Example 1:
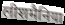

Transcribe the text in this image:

लीशमैनिया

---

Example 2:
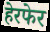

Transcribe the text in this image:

हेरफेर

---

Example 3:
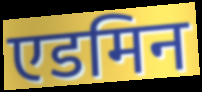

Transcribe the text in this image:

एडमिन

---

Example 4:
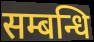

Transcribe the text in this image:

सम्बन्धि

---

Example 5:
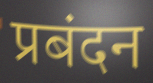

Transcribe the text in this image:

प्रबंदन